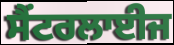
ਸੈਂਟਰਲਾਈਜ